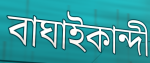
বাঘাইকান্দী